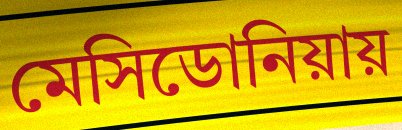
মেসিডোনিয়ায়